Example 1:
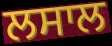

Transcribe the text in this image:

ਲਸਾਲ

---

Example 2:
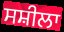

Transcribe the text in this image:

ਸਸ਼ੀਲਾ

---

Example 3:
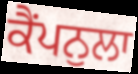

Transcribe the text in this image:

ਕੈਂਪਨੁਲਾ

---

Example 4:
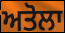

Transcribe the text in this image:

ਅਤੋਲਾ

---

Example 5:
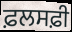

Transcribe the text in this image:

ਫ਼ਲਸਫ਼ੀ